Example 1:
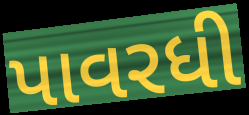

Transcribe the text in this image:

પાવરધી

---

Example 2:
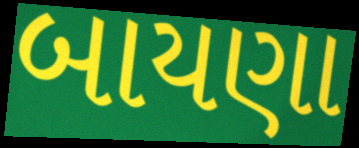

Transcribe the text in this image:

બાયણા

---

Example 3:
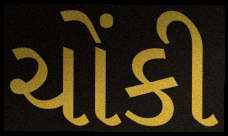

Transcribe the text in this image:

ચોંકી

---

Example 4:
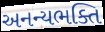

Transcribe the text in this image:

અનન્યભક્તિ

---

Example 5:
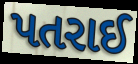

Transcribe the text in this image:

પતરાઈ